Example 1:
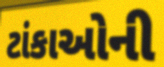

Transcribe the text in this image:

ટાંકાઓની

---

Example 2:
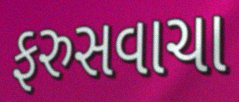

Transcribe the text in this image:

ફરુસવાચા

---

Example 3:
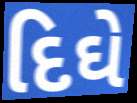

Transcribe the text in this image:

દિઘે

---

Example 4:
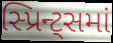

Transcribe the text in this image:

સ્પ્રિન્ટ્સમાં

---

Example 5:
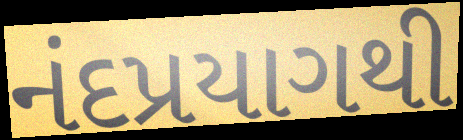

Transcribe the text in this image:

નંદપ્રયાગથી